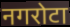
नगरोटा